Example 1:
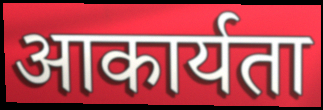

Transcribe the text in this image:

आकार्यता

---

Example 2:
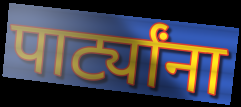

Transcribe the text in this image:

पार्ट्यांना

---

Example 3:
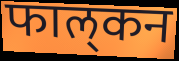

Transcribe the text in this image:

फाल्कन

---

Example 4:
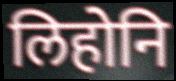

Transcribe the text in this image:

लिहोनि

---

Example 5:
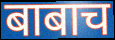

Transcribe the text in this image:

बाबाच